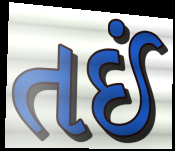
તઈં